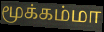
மூக்கம்மா